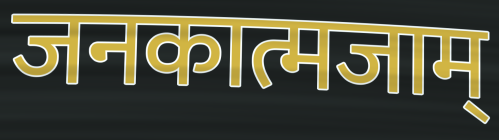
जनकात्मजाम्